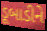
ડૂબાડીને